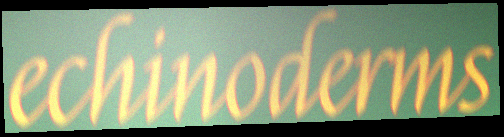
echinoderms